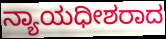
ನ್ಯಾಯಧೀಶರಾದ